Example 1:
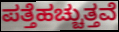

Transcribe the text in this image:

ಪತ್ತೆಹಚ್ಚುತ್ತವೆ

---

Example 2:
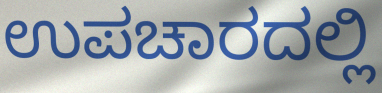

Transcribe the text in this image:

ಉಪಚಾರದಲ್ಲಿ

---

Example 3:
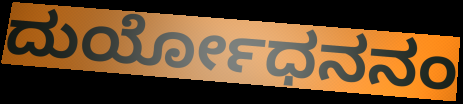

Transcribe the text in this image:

ದುರ್ಯೋಧನನಂ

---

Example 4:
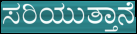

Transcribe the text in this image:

ಸರಿಯುತ್ತಾನೆ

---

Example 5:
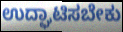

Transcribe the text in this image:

ಉದ್ಘಾಟಿಸಬೇಕು